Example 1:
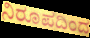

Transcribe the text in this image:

ನಿರೂಪದಿಂದ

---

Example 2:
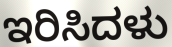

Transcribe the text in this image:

ಇರಿಸಿದಳು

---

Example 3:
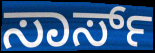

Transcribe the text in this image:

ಸಾರ್ಸ್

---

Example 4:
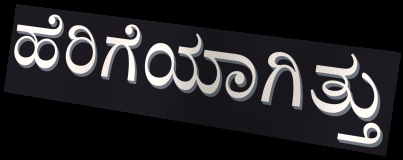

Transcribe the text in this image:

ಹೆರಿಗೆಯಾಗಿತ್ತು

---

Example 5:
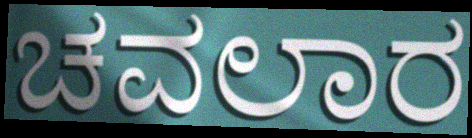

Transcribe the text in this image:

ಚವಲಾರ